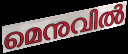
മെനുവിൽ